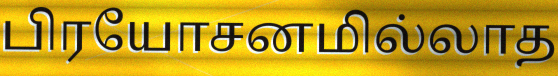
பிரயோசனமில்லாத